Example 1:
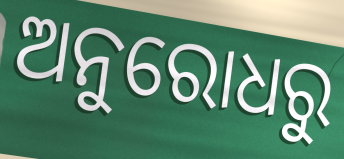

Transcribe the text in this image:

ଅନୁରୋଧରୁ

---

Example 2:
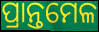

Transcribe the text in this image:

ପ୍ରାନ୍ତମେଳ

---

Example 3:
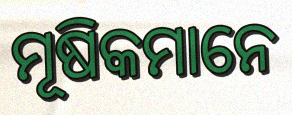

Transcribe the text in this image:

ମୂଷିକମାନେ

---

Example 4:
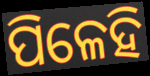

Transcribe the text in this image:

ପିଳେହି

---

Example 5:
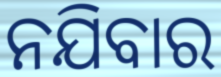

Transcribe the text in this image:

ନଯିବାର